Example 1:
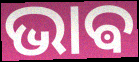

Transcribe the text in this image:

ଭାଵ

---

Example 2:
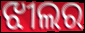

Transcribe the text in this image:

ଝୀଲର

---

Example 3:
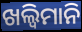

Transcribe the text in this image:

ଖଲ୍ୱିମାନି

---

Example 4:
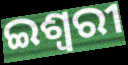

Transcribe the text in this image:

ଇଶ୍ୱରୀ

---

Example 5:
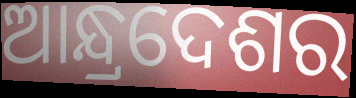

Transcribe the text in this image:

ଆନ୍ଧ୍ରଦେଶର